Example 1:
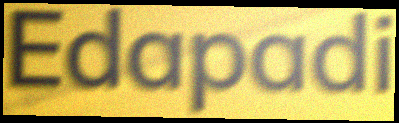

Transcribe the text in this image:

Edapadi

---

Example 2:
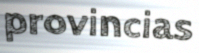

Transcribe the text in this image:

provincias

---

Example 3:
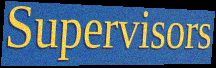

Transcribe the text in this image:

Supervisors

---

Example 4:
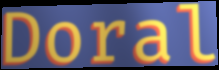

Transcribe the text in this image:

Doral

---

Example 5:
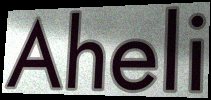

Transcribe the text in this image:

Aheli